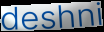
deshni